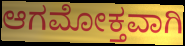
ಆಗಮೋಕ್ತವಾಗಿ